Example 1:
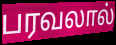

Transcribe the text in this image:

பரவலால்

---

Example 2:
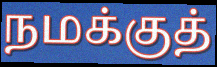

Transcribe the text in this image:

நமக்குத்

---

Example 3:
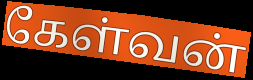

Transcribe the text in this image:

கேள்வன்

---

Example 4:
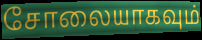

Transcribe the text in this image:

சோலையாகவும்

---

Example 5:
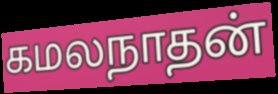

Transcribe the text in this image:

கமலநாதன்